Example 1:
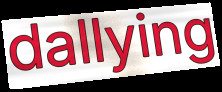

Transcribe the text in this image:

dallying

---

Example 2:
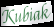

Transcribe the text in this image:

Kubiak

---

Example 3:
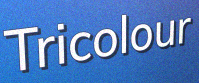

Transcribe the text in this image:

Tricolour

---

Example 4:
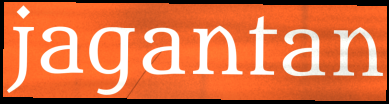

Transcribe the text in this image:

jagantan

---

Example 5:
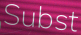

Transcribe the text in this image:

Subst